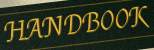
HANDBOOK